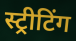
स्ट्रीटिंग